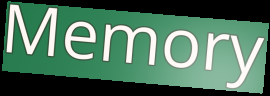
Memory